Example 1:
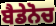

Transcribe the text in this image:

ਬੈਡੇਨੋਚ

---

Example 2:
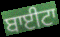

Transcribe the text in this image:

ਬਾਈਟਾ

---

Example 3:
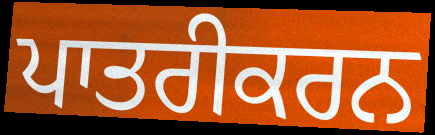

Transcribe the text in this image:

ਪਾਤਰੀਕਰਨ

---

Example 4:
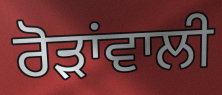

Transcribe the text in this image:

ਰੋੜਾਂਵਾਲੀ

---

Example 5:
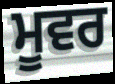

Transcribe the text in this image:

ਮੂਵਰ